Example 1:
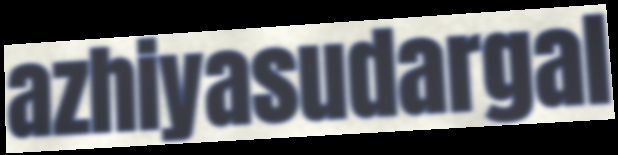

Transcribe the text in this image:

azhiyasudargal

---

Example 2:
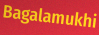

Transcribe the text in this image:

Bagalamukhi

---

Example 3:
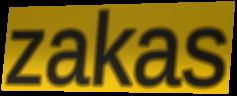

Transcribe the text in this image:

zakas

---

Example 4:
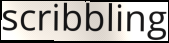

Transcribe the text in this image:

scribbling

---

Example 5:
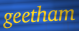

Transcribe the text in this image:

geetham